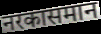
नरकासमान